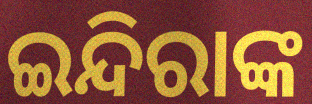
ଇନ୍ଦିରାଙ୍କ